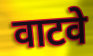
वाटवे